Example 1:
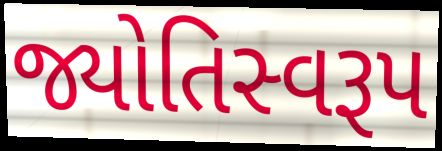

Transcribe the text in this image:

જ્યોતિસ્વરૂપ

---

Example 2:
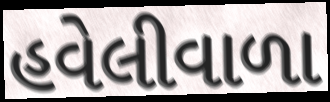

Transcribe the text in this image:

હવેલીવાળા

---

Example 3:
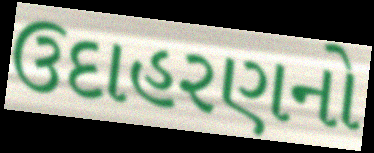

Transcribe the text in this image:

ઉદાહરણનો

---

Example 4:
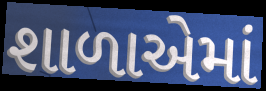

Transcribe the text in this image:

શાળાએમાં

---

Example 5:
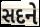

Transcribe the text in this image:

સદને